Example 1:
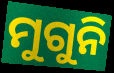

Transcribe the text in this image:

ମୁଗୁନି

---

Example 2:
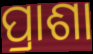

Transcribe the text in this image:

ପ୍ରାଶା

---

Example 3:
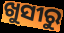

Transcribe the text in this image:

ଖୁସୀରୁ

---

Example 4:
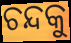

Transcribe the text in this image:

ଚନ୍ଦକୁ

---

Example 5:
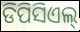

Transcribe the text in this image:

ଡିପିସିଏଲ୍